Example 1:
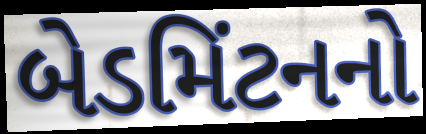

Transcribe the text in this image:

બેડમિંટનનો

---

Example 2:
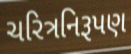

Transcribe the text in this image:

ચરિત્રનિરૂપણ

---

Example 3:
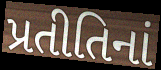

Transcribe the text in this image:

પ્રતીતિનાં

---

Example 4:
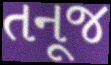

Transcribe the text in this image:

તનૂજ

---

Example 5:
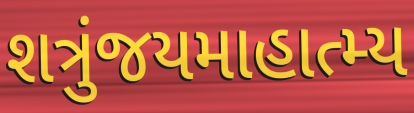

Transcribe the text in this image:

શત્રુંજયમાહાત્મ્ય